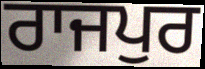
ਰਾਜਪੁਰ